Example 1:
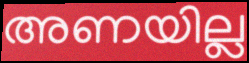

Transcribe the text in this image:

അണയില്ല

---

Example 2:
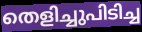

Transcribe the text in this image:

തെളിച്ചുപിടിച്ച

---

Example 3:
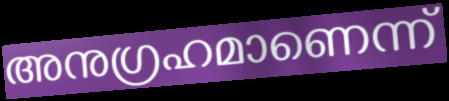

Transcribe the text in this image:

അനുഗ്രഹമാണെന്ന്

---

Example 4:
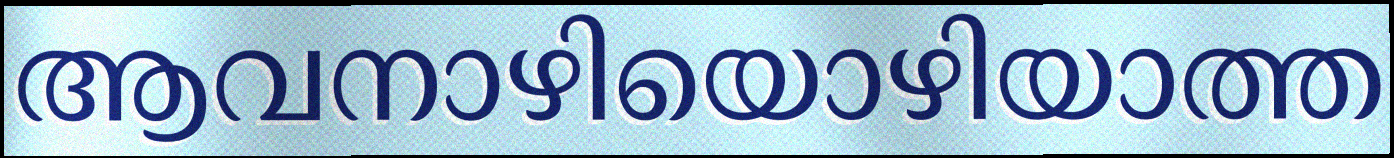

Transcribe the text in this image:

ആവനാഴിയൊഴിയാത്ത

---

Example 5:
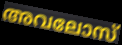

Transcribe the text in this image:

അവലോസ്